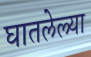
घातलेल्या